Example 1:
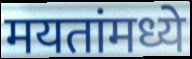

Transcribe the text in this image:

मयतांमध्ये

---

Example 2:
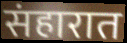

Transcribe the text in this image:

संहारात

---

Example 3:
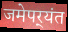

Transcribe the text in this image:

जमेपर्यंत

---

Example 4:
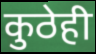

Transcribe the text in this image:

कुठेही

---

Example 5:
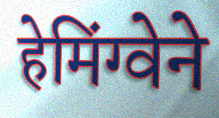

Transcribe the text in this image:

हेमिंग्वेने